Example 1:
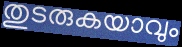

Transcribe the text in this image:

തുടരുകയാവും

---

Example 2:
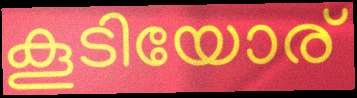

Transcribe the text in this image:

കൂടിയോര്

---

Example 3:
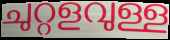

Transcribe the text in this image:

ചുറ്റളവുള്ള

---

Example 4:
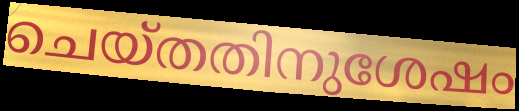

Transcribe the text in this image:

ചെയ്തതിനുശേഷം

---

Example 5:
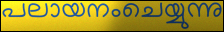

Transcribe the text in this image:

പലായനംചെയ്യുന്നു